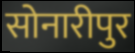
सोनारीपुर